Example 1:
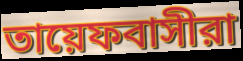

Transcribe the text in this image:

তায়েফবাসীরা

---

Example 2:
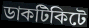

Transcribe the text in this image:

ডাকটিকিটে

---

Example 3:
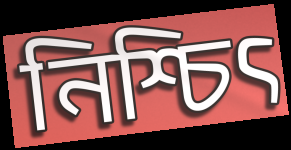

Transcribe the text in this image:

নিশ্চিৎ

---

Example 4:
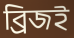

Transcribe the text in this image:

ব্রিজই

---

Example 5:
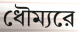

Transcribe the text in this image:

ধৌম্যরে